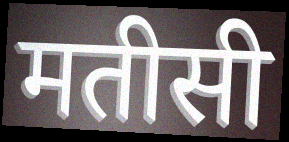
मतीसी